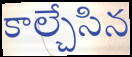
కాల్చేసిన